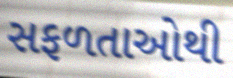
સફળતાઓથી